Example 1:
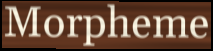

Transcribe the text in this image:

Morpheme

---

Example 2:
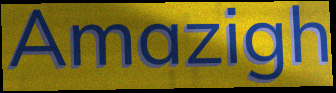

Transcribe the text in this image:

Amazigh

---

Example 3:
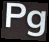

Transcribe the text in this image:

Pg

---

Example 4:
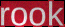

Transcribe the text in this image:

rook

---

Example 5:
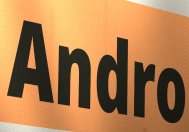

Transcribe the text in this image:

Andro